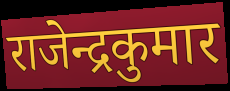
राजेन्द्रकुमार